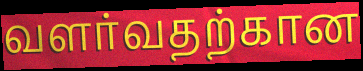
வளர்வதற்கான